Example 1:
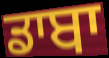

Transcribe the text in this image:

ਡਾਬਾ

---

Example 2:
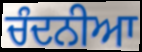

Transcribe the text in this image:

ਚੰਦਨੀਆ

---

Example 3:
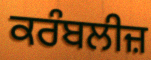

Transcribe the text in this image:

ਕਰੰਬਲੀਜ਼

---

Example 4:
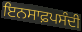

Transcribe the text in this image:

ਇਨਸਾਫ਼ਪਸੰਦੀ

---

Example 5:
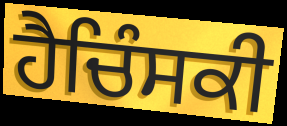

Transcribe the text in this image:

ਹੈਚਿੰਸਕੀ